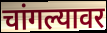
चांगल्यावर